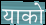
याको